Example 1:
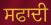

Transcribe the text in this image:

ਸਫਾਦੀ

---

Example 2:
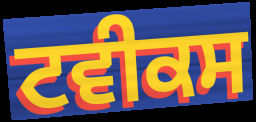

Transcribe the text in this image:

ਟਵੀਕਸ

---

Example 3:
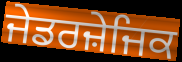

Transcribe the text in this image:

ਜੇਡਰਜ਼ੇਜਿਕ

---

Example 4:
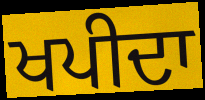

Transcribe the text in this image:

ਖਪੀਦਾ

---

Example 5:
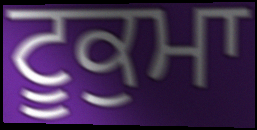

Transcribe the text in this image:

ਟੂਕੁਮਾ